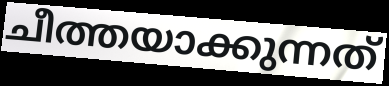
ചീത്തയാക്കുന്നത്